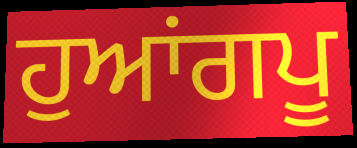
ਹੁਆਂਗਪੂ